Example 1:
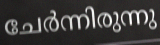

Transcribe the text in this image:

ചേർന്നിരുന്നു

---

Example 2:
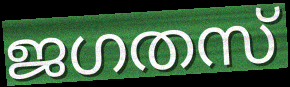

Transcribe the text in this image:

ജഗതസ്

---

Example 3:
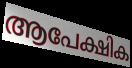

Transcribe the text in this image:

ആപേക്ഷിക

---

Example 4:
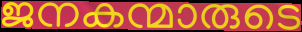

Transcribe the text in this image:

ജനകന്മാരുടെ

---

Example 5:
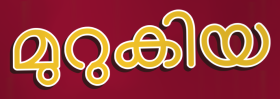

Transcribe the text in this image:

മുറുകിയ